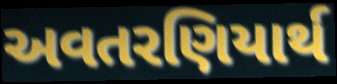
અવતરણિયાર્થ